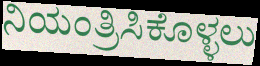
ನಿಯಂತ್ರಿಸಿಕೊಳ್ಳಲು